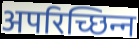
अपरिच्छिन्न